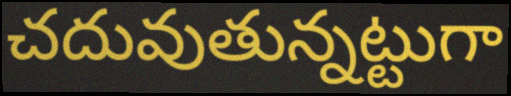
చదువుతున్నట్టుగా